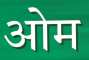
ओम